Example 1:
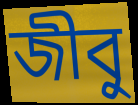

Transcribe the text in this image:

জীবু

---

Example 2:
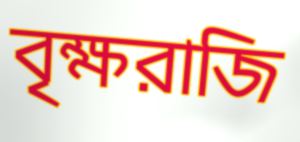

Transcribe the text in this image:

বৃক্ষরাজি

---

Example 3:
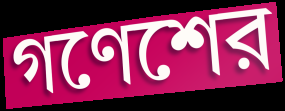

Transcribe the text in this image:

গণেশের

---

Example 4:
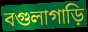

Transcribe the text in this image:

বগুলাগাড়ি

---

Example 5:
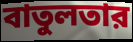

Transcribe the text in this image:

বাতুলতার